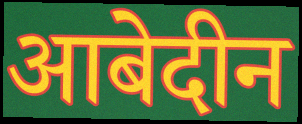
आबेदीन